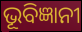
ଭୂବିଜ୍ଞାନୀ